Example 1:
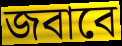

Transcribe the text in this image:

জবাবে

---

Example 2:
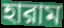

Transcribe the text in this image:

হারাম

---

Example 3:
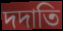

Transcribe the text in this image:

দদাতি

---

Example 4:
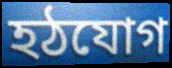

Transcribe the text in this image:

হঠযোগ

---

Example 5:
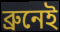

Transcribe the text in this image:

ব্রুনেই